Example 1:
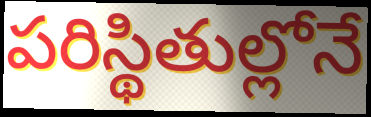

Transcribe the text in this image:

పరిస్థితుల్లోనే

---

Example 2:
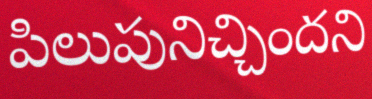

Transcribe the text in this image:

పిలుపునిచ్చిందని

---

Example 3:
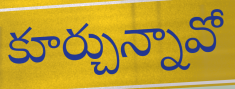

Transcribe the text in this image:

కూర్చున్నావో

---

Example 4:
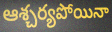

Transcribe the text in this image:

ఆశ్చర్యపోయినా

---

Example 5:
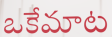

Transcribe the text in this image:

ఒకేమాట